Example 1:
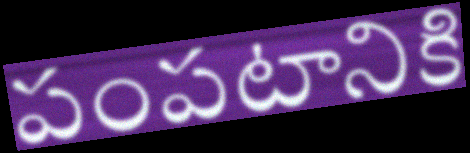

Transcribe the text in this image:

పంపటానికి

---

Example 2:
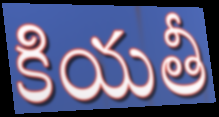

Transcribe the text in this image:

కియతీ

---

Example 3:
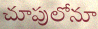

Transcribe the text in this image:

చూపులోనూ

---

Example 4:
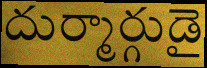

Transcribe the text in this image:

దుర్మార్గుడై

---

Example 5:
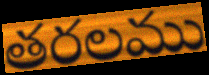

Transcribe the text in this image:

తరలము